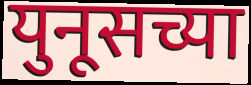
युनूसच्या